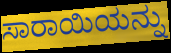
ಸಾರಾಯಿಯನ್ನು